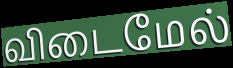
விடைமேல்